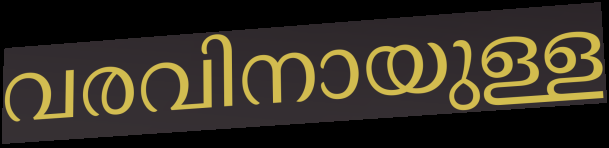
വരവിനായുള്ള